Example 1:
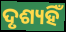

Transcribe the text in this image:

ଦୃଶ୍ୟହିଁ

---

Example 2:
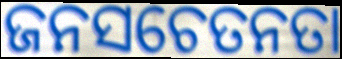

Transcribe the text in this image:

ଜନସଚେତନତା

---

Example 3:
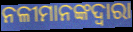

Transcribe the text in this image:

ନଳୀମାନଙ୍କଦ୍ୱାରା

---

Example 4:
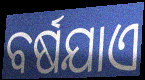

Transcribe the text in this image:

ବର୍ଷଯାଏ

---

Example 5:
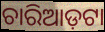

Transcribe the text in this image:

ଚାରିଆଡ଼ଟା